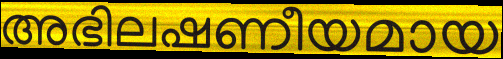
അഭിലഷണീയമായ